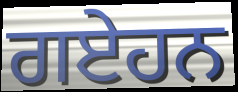
ਗਏਹਨ